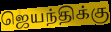
ஜெயந்திக்கு